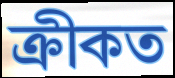
ক্ৰীকত